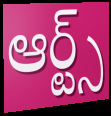
ఆర్ట్స్